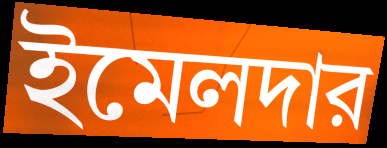
ইমেলদার